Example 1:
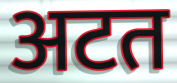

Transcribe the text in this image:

अटत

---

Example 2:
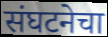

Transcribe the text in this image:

संघटनेचा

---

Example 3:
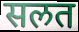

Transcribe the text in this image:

सलत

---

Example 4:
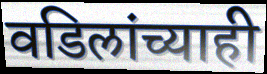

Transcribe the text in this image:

वडिलांच्याही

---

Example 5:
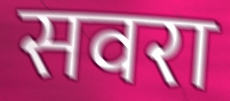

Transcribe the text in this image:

सवरा